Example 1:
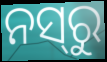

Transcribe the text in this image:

ନସ୍‍ରୁ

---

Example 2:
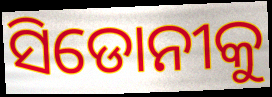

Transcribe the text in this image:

ସିଡୋନୀକୁ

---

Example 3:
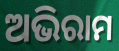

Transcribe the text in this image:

ଅଭିରାମ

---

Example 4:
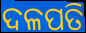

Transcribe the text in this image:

ଦଳପତି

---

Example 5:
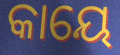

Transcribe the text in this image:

କାୟେ